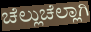
ಚೆಲ್ಲುಚೆಲ್ಲಾಗಿ